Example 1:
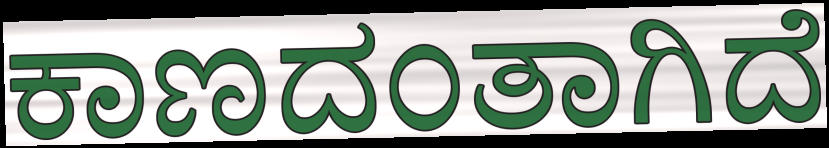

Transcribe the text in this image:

ಕಾಣದಂತಾಗಿದೆ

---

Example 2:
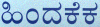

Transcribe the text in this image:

ಹಿಂದಕೆಕ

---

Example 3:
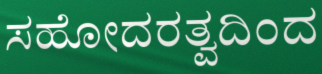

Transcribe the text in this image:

ಸಹೋದರತ್ವದಿಂದ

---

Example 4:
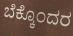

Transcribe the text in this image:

ಬೆಕ್ಕೊಂದರ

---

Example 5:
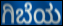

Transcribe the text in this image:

ಗಿಬೆಯ